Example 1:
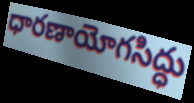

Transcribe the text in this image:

ధారణాయోగసిద్ధు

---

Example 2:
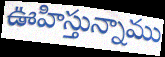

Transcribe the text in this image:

ఊహిస్తున్నాము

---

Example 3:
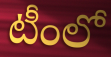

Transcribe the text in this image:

టీంలో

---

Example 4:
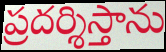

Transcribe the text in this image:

ప్రదర్శిస్తాను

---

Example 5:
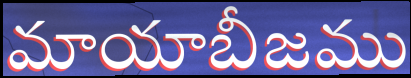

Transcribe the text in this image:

మాయాబీజము